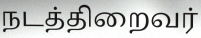
நடத்திறைவர்